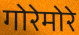
गोरेमोरे